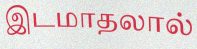
இடமாதலால்